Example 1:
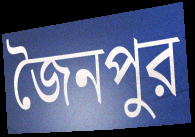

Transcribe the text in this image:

জৈনপুর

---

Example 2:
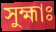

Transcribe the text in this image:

সুহ্মাঃ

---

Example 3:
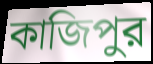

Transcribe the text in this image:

কাজিপুর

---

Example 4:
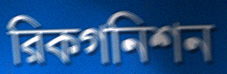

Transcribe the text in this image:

রিকগনিশন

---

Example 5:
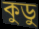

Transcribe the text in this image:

কুডু